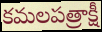
కమలపత్రాక్షీ